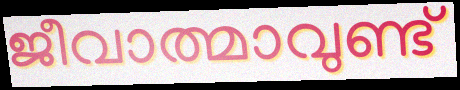
ജീവാത്മാവുണ്ട്